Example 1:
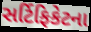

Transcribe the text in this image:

સર્ટિફિકેટના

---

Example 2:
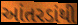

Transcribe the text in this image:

આંતરડાંથી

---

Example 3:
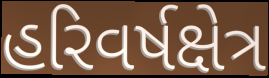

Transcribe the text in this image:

હરિવર્ષક્ષેત્ર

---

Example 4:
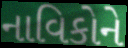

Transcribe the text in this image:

નાવિકોને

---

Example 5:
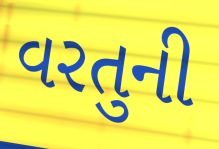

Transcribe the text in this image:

વરતુની